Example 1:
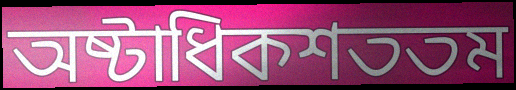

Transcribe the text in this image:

অষ্টাধিকশততম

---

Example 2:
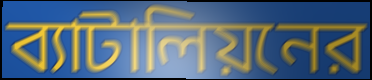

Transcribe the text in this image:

ব্যাটালিয়নের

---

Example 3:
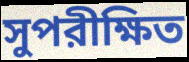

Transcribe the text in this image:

সুপরীক্ষিত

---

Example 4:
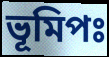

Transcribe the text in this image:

ভূমিপঃ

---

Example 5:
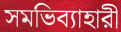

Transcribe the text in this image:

সমভিব্যাহারী